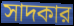
সাদকার